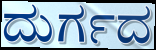
ದುರ್ಗದ